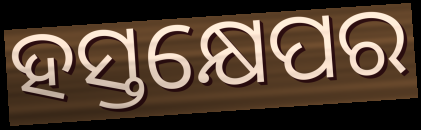
ହସ୍ତକ୍ଷେପର